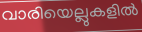
വാരിയെല്ലുകളിൽ